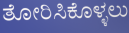
ತೋರಿಸಿಕೊಳ್ಳಲು